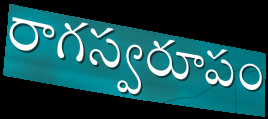
రాగస్వరూపం